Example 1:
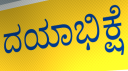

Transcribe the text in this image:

ದಯಾಭಿಕ್ಷೆ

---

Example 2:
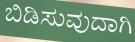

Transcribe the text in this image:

ಬಿಡಿಸುವುದಾಗಿ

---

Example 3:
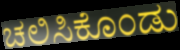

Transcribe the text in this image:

ಚಲಿಸಿಕೊಂಡು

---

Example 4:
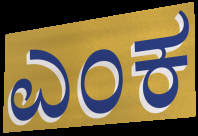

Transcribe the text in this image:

ಎಂಕ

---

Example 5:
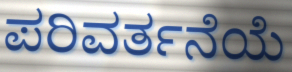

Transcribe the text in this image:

ಪರಿವರ್ತನೆಯೆ